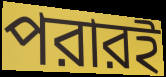
পরারই